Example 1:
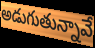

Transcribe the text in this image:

అడుగుతున్నావే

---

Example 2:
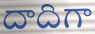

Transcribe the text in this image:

దాదిగా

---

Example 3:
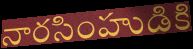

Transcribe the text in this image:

నారసింహుడికి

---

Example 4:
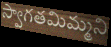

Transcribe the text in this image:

స్వాగతమిమ్మని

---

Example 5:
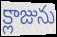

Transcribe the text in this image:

క్లాజును